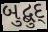
બુદ્બુદ્